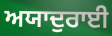
ਅਯਾਦੁਰਾਈ